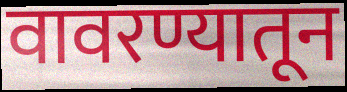
वावरण्यातून